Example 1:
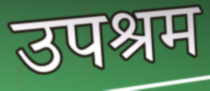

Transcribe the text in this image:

उपश्रम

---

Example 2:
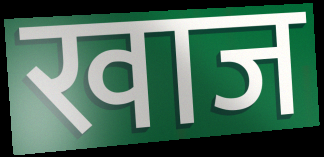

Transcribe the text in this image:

खाज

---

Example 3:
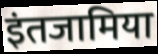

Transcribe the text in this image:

इंतजामिया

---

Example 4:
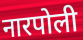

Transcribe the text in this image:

नारपोली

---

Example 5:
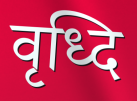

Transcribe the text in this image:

वृध्दि